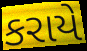
કરાયે